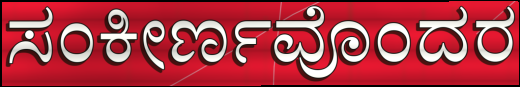
ಸಂಕೀರ್ಣವೊಂದರ